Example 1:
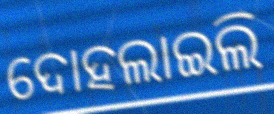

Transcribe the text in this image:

ଦୋହଲାଇଲି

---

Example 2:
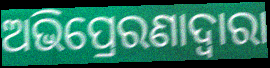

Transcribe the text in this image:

ଅଭିପ୍ରେରଣାଦ୍ୱାରା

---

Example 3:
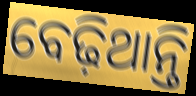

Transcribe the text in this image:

ବେଢ଼ିଥାନ୍ତି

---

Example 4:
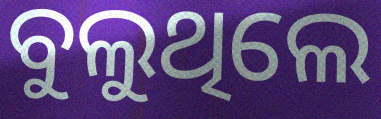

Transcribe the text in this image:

ବୁଲୁଥିଲେ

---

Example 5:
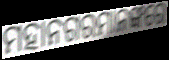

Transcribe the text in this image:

ମହାନଗରମାନଙ୍କରେ